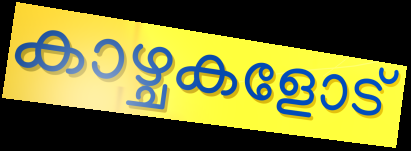
കാഴ്ചകളോട്